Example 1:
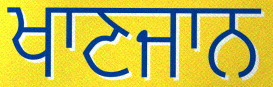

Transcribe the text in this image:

ਖਾਣਜਾਨ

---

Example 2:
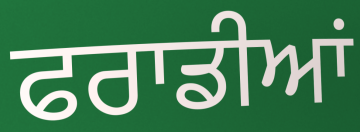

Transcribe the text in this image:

ਫਰਾਡੀਆਂ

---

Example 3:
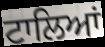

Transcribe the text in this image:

ਟਾਲਿਆਂ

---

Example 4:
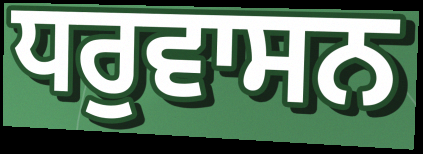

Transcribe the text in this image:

ਧਰੁਵਾਸਨ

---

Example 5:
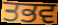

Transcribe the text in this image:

ਤਭਵ